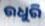
ଉଧୁରି